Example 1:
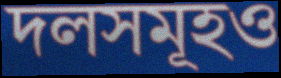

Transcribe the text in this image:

দলসমূহও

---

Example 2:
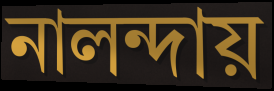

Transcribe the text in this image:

নালন্দায়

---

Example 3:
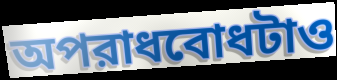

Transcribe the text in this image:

অপরাধবোধটাও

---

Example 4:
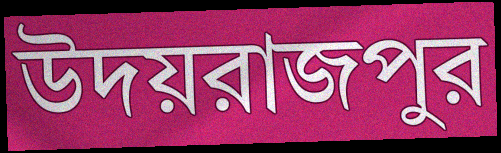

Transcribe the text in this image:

উদয়রাজপুর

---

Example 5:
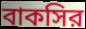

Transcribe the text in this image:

বাকসির